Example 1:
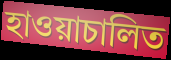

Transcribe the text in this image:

হাওয়াচালিত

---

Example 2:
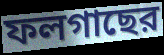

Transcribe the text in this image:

ফলগাছের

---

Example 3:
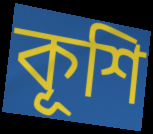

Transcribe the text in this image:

কূশি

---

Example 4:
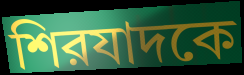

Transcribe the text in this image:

শিরযাদকে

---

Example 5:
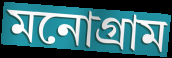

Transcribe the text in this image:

মনোগ্রাম